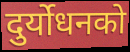
दुर्योधनको